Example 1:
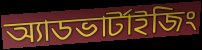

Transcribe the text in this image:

অ্যাডভার্টাইজিং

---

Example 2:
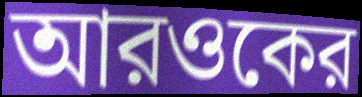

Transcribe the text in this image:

আরওকের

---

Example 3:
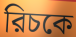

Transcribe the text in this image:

রিচকে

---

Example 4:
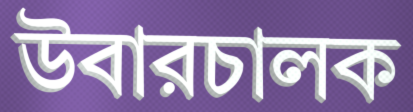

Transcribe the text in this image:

উবারচালক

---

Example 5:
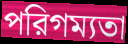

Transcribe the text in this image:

পরিগম্যতা